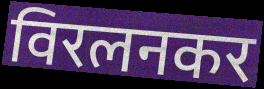
विरलनकर